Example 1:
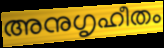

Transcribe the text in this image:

അനുഗൃഹീതം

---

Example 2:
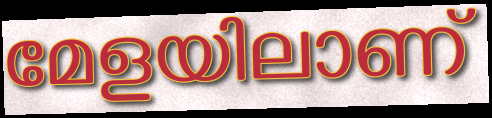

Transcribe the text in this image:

മേളയിലാണ്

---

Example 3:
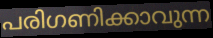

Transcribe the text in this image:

പരിഗണിക്കാവുന്ന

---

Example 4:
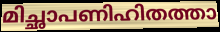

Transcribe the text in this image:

മിച്ഛാപണിഹിതത്താ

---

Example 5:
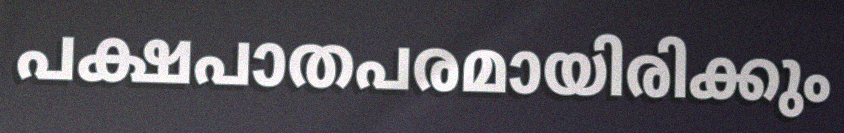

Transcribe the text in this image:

പക്ഷപാതപരമായിരിക്കും